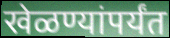
खेळण्यांपर्यंत